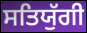
ਸਤਿਯੁੱਗੀ